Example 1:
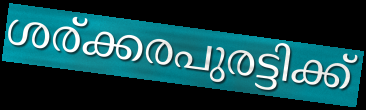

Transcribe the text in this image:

ശര്ക്കരപുരട്ടിക്ക്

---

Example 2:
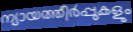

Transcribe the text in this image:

ന്യായത്തീർപ്പുകളും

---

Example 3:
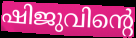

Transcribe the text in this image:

ഷിജുവിന്റെ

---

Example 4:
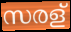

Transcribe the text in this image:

സരള്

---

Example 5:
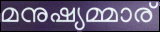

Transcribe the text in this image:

മനുഷ്യമ്മാര്